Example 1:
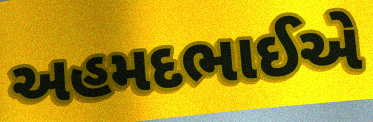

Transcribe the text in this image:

અહમદભાઈએ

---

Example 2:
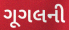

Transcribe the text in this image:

ગૂગલની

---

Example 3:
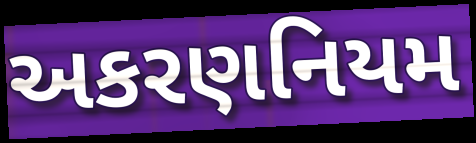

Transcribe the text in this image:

અકરણનિયમ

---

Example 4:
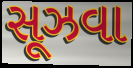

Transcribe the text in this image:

સૂઝવા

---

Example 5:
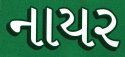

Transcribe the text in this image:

નાયર